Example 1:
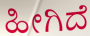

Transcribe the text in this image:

ಹೀಗಿದೆ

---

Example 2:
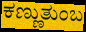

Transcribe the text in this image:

ಕಣ್ಣುತುಂಬ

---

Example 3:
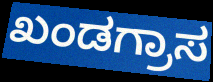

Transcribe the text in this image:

ಖಂಡಗ್ರಾಸ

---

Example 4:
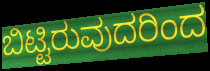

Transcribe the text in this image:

ಬಿಟ್ಟಿರುವುದರಿಂದ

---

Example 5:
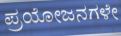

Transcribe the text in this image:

ಪ್ರಯೋಜನಗಳೇ